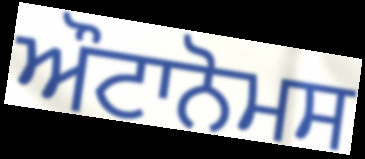
ਔਟਾਨੋਮਸ